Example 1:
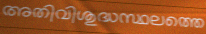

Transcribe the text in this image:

അതിവിശുദ്ധസ്ഥലത്തെ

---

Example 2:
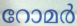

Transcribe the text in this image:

റോമർ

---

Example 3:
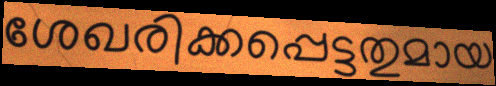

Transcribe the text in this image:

ശേഖരിക്കപ്പെട്ടതുമായ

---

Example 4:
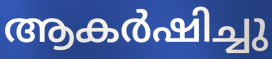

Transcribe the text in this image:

ആകർഷിച്ചു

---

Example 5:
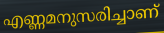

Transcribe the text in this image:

എണ്ണമനുസരിച്ചാണ്